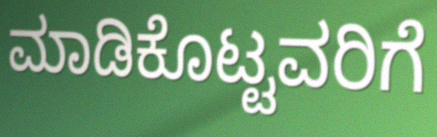
ಮಾಡಿಕೊಟ್ಟವರಿಗೆ